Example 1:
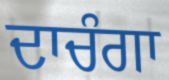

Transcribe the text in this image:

ਦਾਚੰਗਾ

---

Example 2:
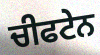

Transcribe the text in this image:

ਚੀਫਟੇਨ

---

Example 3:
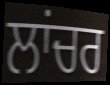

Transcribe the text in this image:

ਲਾਂਚਰ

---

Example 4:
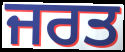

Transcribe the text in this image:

ਜਰਤ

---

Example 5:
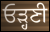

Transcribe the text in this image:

ਓੜ੍ਹਣੀ